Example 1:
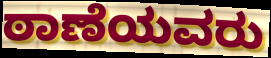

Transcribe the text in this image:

ಠಾಣೆಯವರು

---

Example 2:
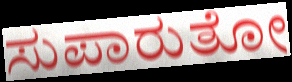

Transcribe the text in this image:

ಸುಪಾರುತೋ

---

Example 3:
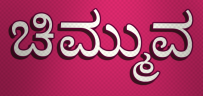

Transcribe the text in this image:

ಚಿಮ್ಮುವ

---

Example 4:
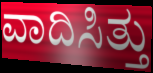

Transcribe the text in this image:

ವಾದಿಸಿತ್ತು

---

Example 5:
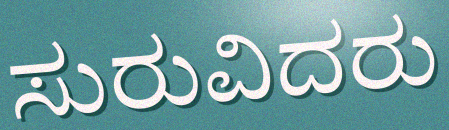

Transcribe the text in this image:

ಸುರುವಿದರು